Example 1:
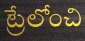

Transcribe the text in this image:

ట్రేలోంచి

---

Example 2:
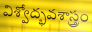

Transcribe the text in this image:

విశ్వోద్భవశాస్త్రం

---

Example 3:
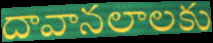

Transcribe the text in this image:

దావానలాలకు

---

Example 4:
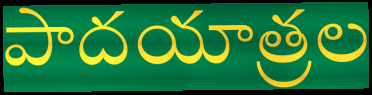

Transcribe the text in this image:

పాదయాత్రల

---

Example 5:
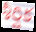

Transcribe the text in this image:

శీర్షిక